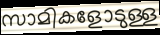
സാമികളോടുള്ള